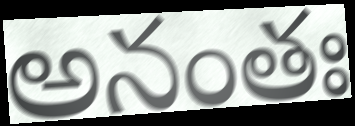
అనంతః